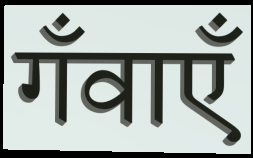
गँवाएँ